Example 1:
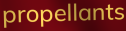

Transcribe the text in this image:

propellants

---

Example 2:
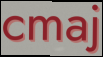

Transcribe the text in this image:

cmaj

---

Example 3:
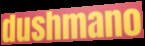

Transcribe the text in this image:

dushmano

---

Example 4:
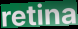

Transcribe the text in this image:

retina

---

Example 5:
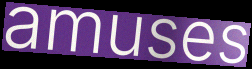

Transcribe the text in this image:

amuses